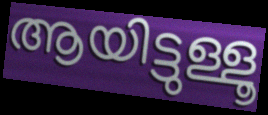
ആയിട്ടുള്ളൂ